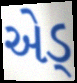
એડ્